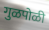
गुळपोळी